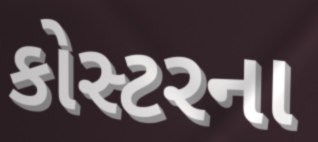
કોસ્ટરના